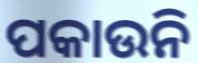
ପକାଉନି